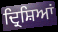
ਦ੍ਰਿਸ਼ਿਆਂ